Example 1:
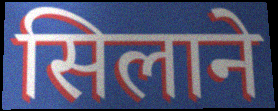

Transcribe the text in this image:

सिलाने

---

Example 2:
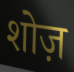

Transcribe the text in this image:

शोज़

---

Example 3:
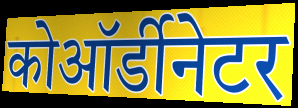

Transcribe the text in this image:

कोऑर्डीनेटर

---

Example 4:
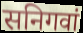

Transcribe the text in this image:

सनिगवां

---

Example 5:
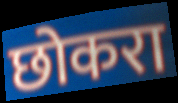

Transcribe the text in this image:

छोकरा